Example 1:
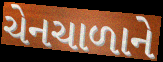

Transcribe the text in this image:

ચેનચાળાને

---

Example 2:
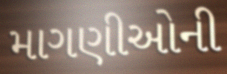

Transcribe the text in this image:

માગણીઓની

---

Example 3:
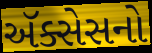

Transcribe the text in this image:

ઍક્સેસનો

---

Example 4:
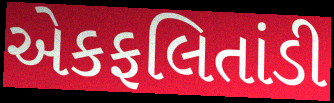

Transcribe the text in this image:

એકફલિતાંડી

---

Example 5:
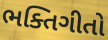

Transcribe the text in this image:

ભક્તિગીતો